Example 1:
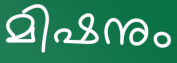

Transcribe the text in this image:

മിഷനും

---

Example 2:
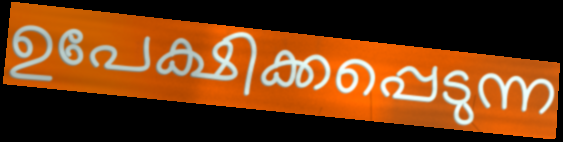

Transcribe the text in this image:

ഉപേക്ഷിക്കപ്പെടുന്ന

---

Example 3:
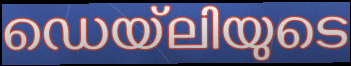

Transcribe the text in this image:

ഡെയ്‌ലിയുടെ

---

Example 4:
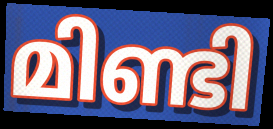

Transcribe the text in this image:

മിണ്ടി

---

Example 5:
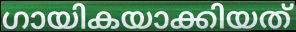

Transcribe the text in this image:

ഗായികയാക്കിയത്